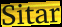
Sitar